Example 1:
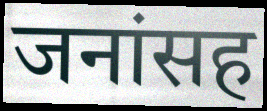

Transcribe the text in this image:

जनांसह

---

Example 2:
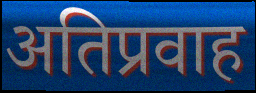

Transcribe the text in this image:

अतिप्रवाह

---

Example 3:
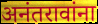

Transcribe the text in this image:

अनंतरावांना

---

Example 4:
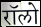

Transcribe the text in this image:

रॉलो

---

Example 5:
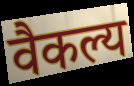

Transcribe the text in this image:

वैकल्य